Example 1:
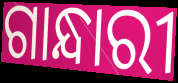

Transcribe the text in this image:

ଗାନ୍ଧାରୀ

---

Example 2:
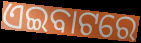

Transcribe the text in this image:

ଏଇବାଟରେ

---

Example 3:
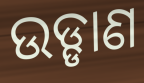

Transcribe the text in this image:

ଉଡ୍ଡାଣ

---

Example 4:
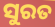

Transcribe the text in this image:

ସୁରତ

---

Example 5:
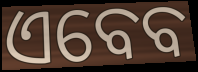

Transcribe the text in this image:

ଏବେବ